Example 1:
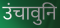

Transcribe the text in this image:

उंचावुनि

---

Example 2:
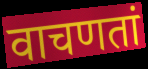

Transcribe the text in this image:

वाचणतां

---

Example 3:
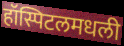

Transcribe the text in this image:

हॉस्पिटलमधली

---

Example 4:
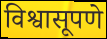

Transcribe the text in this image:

विश्वासूपणे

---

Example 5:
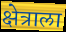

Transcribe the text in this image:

क्षेत्राला